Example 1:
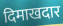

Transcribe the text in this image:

दिमाखदार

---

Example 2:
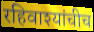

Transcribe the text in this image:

रहिवाश्यांचीच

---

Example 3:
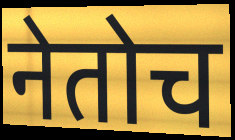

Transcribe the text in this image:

नेतोच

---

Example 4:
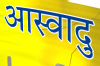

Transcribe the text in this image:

आस्वादु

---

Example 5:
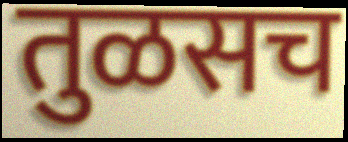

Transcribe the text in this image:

तुळसच